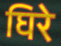
घिरे